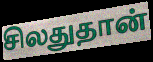
சிலதுதான்